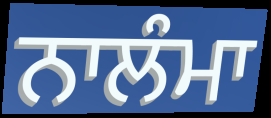
ਨਾਲੰਮਾ